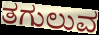
ತಗುಲುವ